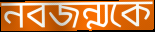
নবজন্মকে